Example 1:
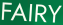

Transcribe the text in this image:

FAIRY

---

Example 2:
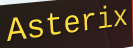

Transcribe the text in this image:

Asterix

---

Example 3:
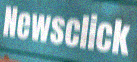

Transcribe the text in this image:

Newsclick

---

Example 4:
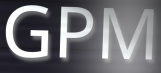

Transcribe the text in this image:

GPM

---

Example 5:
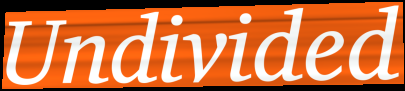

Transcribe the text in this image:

Undivided